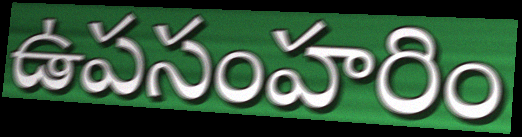
ఉపసంహరిం